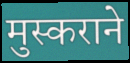
मुस्कराने